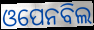
ଓପେନବିଲ